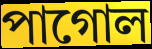
পাগোল